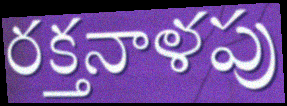
రక్తనాళపు